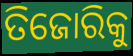
ତିଜୋରିକୁ